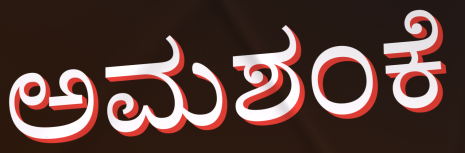
ಅಮಶಂಕೆ